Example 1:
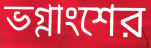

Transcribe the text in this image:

ভগ্নাংশের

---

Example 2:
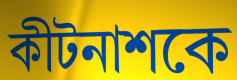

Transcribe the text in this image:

কীটনাশকে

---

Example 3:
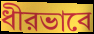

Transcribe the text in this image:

ধীরভাবে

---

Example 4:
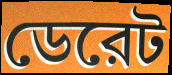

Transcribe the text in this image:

ডেরেট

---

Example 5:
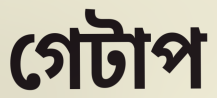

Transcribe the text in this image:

গেটাপ